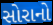
સોરાનો